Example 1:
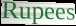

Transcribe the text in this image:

Rupees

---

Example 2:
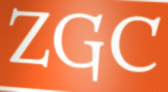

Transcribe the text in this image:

ZGC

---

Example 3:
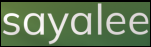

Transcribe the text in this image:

sayalee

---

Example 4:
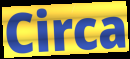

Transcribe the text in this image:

Circa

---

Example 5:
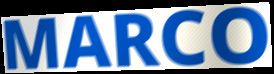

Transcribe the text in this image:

MARCO